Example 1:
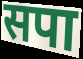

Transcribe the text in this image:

सपा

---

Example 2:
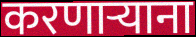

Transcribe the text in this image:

करणाऱ्याना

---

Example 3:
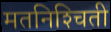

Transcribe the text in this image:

मतनिश्चिती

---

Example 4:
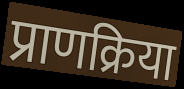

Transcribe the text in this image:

प्राणक्रिया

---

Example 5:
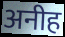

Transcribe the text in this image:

अनीह